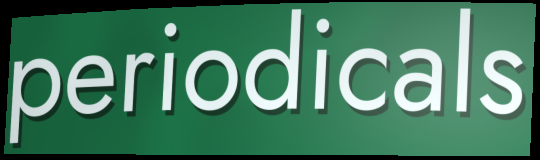
periodicals